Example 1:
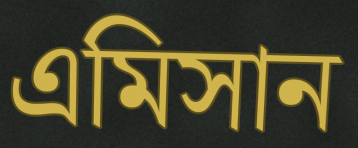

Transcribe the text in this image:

এমিসান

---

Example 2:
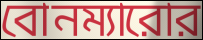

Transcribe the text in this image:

বোনম্যারোর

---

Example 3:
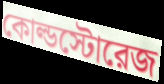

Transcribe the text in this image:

কোল্ডস্টোরেজ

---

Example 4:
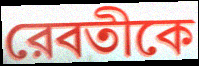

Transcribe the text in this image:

রেবতীকে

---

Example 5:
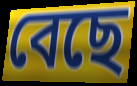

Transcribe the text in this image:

বেছে